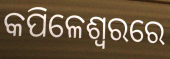
କପିଳେଶ୍ୱରରେ